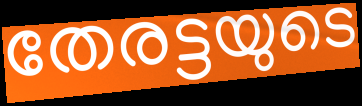
തേരട്ടയുടെ